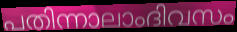
പതിന്നാലാംദിവസം